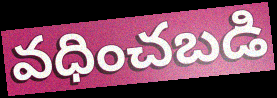
వధించబడి